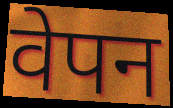
वेपन